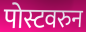
पोस्टवरुन